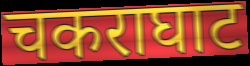
चकराघाट